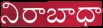
నిరాబాధా